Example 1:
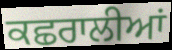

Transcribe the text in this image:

ਕਛਰਾਲੀਆਂ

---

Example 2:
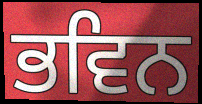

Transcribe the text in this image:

ਭਵਿਨ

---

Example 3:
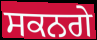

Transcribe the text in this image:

ਸਕਨਗੇ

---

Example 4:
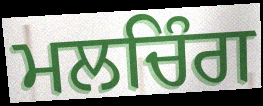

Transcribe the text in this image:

ਮਲਚਿੰਗ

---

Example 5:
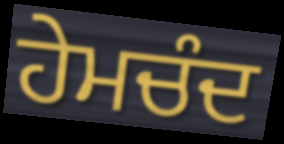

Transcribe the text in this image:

ਹੇਮਚੰਦ